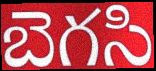
బెగసి